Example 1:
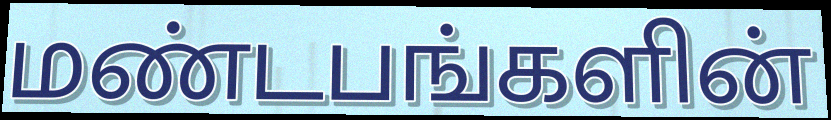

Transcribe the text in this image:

மண்டபங்களின்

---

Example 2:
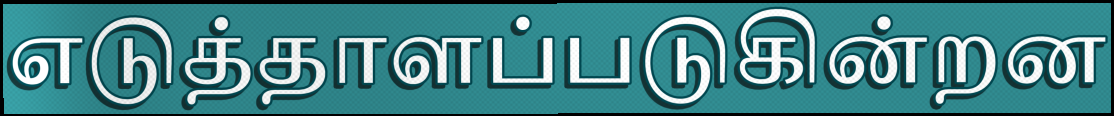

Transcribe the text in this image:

எடுத்தாளப்படுகின்றன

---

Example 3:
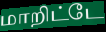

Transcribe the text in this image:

மாறிட்டே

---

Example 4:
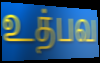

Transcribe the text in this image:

உத்பவ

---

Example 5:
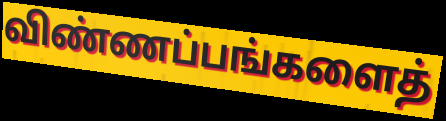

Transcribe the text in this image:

விண்ணப்பங்களைத்